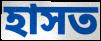
হাসত